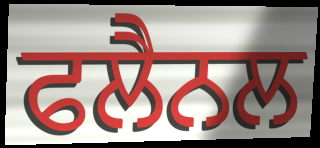
ਫਲੈਨਲ